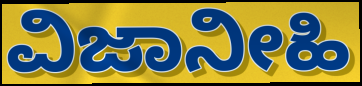
ವಿಜಾನೀಹಿ